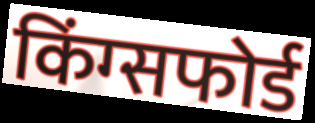
किंग्सफोर्ड